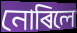
নোৰিলে